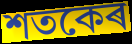
শতকেৰ